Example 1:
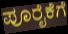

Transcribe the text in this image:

ಪೂರೈಕೆಗೆ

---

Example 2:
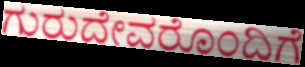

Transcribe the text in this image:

ಗುರುದೇವರೊಂದಿಗೆ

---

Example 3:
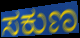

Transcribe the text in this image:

ಸಕುಣ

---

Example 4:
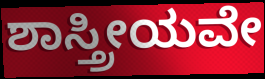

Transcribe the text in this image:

ಶಾಸ್ತ್ರೀಯವೇ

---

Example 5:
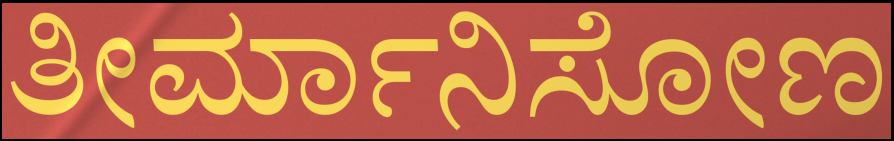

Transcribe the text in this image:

ತೀರ್ಮಾನಿಸೋಣ